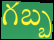
గబ్బ